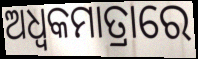
ଅଧ୍ଵକମାତ୍ରାରେ